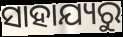
ସାହାଯ୍ୟରୁ